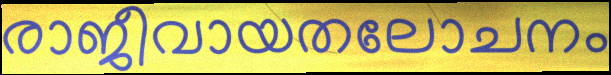
രാജീവായതലോചനം